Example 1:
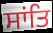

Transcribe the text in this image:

ਸਾਂਤਿ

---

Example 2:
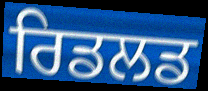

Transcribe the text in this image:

ਰਿਡਲਡ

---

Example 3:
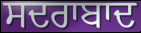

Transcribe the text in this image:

ਸਦਰਾਬਾਦ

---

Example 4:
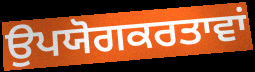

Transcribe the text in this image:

ਉਪਯੋਗਕਰਤਾਵਾਂ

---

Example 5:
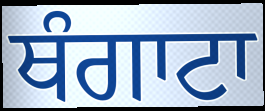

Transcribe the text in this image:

ਥੰਗਾਟਾ